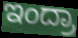
ಇಂದ್ರಾ